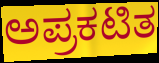
ಅಪ್ರಕಟಿತ